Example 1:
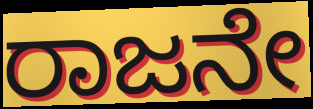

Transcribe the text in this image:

ರಾಜನೇ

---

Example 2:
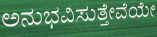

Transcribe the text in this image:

ಅನುಭವಿಸುತ್ತೇವೆಯೇ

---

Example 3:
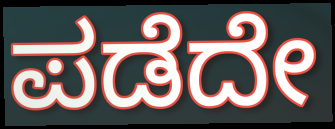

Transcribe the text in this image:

ಪಡೆದೇ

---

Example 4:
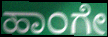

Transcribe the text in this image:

ಹಾಂಗೇ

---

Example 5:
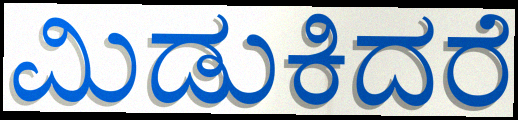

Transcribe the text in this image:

ಮಿಡುಕಿದರೆ